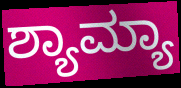
ಶ್ಯಾಮ್ಯಾ